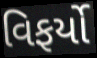
વિફર્યો